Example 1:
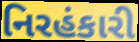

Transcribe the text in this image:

નિરહંકારી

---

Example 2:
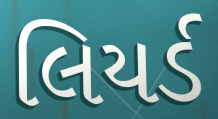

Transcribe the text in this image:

લિયર્ડ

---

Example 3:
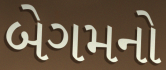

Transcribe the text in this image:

બેગમનો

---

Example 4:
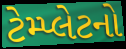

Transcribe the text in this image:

ટેમ્પ્લેટનો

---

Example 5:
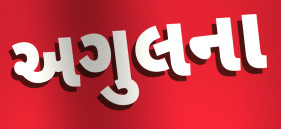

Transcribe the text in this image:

અગુલના